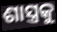
ଶାସ୍ତ୍ରକୁ